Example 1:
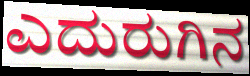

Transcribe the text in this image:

ಎದುರುಗಿನ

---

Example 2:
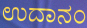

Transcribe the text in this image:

ಉದಾನಂ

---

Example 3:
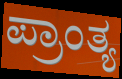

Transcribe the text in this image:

ಪ್ರಾಂತ್ಯ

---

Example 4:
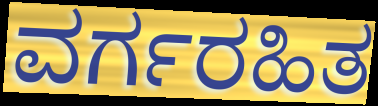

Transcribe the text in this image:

ವರ್ಗರಹಿತ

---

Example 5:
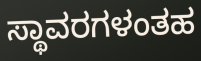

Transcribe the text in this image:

ಸ್ಥಾವರಗಳಂತಹ